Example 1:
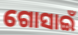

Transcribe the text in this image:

ଗୋସାଇଁ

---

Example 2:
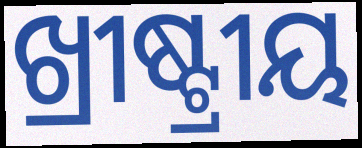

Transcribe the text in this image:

ଖ୍ରୀଷ୍ଟ୍ରୀୟ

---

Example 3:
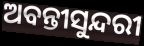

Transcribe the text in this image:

ଅବନ୍ତୀସୁନ୍ଦରୀ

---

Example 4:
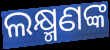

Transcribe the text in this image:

ଲକ୍ଷ୍ମଣଙ୍କ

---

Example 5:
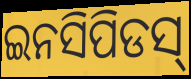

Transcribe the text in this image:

ଇନସିପିଡସ୍